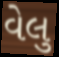
વેલુ